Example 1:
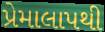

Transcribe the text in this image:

પ્રેમાલાપથી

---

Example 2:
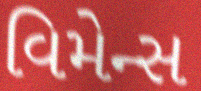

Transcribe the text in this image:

વિમેન્સ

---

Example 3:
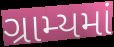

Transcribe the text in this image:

ગ્રામ્યમાં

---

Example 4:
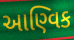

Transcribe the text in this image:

આણ્વિક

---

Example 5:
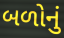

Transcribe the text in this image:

બળોનું